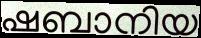
ഷബാനിയ